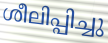
ശീലിപ്പിച്ചു